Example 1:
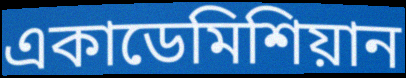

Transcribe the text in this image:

একাডেমিশিয়ান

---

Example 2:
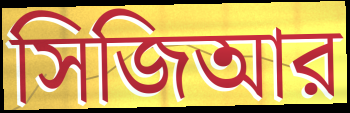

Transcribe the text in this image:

সিজিআর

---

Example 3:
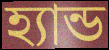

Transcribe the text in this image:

হ্যান্ড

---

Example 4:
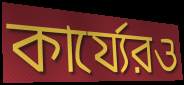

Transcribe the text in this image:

কার্য্যেরও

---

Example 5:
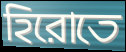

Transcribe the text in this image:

হিরোতে